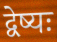
द्वेष्यः